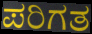
ಪರಿಗತ